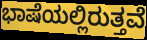
ಭಾಷೆಯಲ್ಲಿರುತ್ತವೆ